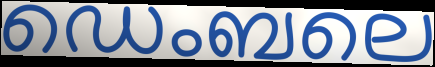
ഡെംബലെ